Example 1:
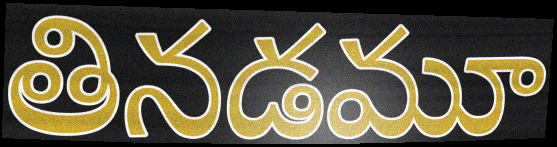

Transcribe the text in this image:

తినడమూ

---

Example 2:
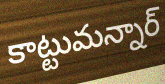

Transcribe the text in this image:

కాట్టుమన్నార్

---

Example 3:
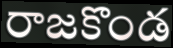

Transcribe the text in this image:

రాజకొండ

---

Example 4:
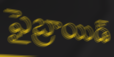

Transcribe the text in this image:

ఫైబ్రాయిడ్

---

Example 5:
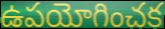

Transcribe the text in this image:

ఉపయోగించక